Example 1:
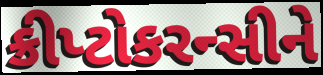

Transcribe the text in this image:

ક્રીપ્ટોકરન્સીને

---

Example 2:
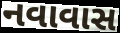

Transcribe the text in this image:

નવાવાસ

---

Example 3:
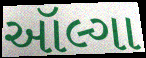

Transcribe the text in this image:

ઑલ્ગા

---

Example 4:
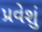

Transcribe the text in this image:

પ્રવેશું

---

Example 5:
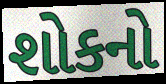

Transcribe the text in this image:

શોકનો